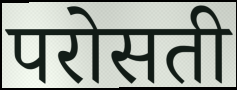
परोसती